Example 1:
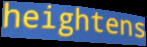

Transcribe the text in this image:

heightens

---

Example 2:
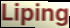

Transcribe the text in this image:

Liping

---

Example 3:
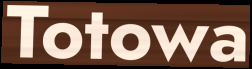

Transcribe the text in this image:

Totowa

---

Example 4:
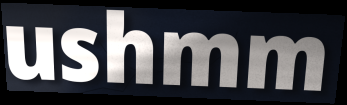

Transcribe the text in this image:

ushmm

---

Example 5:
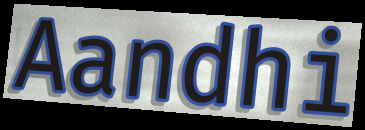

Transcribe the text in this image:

Aandhi